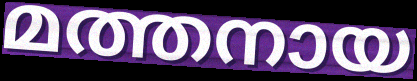
മത്തനായ